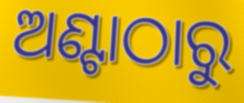
ଅଣ୍ଟାଠାରୁ